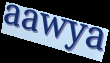
aawya